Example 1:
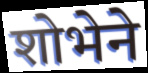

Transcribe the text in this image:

शोभेने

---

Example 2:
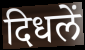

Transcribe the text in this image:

दिधलें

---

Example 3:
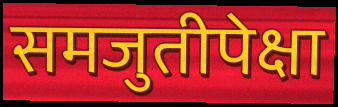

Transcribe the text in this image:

समजुतीपेक्षा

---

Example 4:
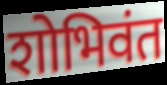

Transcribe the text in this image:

शोभिवंत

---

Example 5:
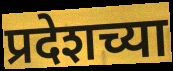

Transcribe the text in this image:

प्रदेशच्या